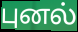
புனல்